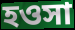
হওসা